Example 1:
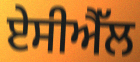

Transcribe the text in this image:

ਏਸੀਐੱਲ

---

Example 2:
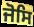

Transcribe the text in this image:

ਜੋਸਿ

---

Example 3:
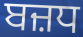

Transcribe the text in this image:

ਬਜ਼ਧ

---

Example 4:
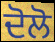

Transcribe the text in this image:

ਦੋਲੋ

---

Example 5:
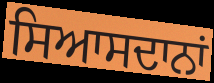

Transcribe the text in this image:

ਸਿਆਸਦਾਨਾਂ